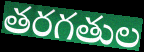
తరగతుల